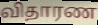
விதாரண